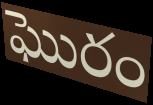
ఘొరం